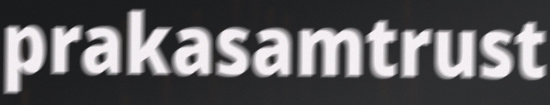
prakasamtrust